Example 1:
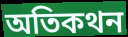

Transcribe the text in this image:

অতিকথন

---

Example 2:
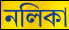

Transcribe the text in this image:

নলিকা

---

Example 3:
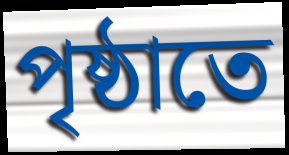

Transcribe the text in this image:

পৃষ্ঠাতে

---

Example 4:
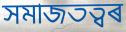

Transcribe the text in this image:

সমাজতত্বৰ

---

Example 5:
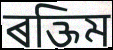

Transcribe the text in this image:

ৰক্তিম